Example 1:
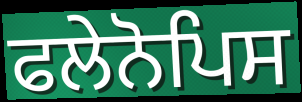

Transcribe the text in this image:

ਫਲੇਨੋਪਿਸ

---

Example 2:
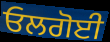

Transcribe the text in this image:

ਓਲਗੋਈ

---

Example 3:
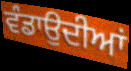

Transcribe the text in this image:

ਵੰਡਾਉਦੀਆਂ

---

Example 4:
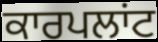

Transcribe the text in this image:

ਕਾਰਪਲਾਂਟ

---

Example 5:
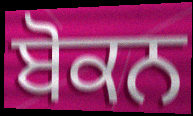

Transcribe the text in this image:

ਬੋਕਨ